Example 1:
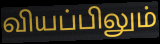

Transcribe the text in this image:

வியப்பிலும்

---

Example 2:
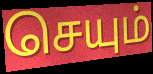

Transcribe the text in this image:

செயும்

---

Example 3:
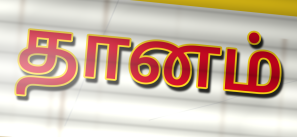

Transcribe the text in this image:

தானம்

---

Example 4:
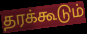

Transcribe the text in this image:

தரக்கூடும்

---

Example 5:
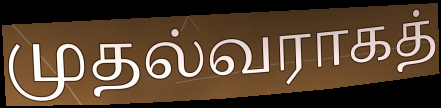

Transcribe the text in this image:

முதல்வராகத்